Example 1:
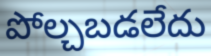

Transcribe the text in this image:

పోల్చబడలేదు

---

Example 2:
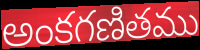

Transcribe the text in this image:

అంకగణితము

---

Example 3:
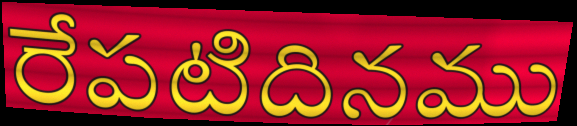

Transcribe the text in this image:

రేపటిదినము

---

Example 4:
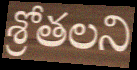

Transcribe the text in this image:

శ్రోతలని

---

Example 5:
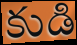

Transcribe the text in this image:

కుడి